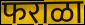
फराळा